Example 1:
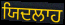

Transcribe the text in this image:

ਯਿਦਲਾਹ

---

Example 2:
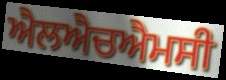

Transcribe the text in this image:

ਐਲਐਚਐਮਸੀ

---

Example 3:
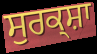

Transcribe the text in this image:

ਸੁਰਕ੍ਸ਼ਾ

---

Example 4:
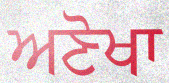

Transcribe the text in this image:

ਅਣੋਖਾ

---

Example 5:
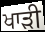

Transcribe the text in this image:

ਖਾਡ਼ੀ